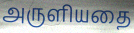
அருளியதை